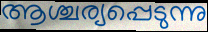
ആശ്ചര്യപ്പെടുന്നു